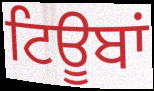
ਟਿਊਬਾਂ